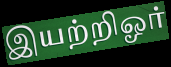
இயற்றிஓர்